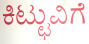
ಕಿಟ್ಟುವಿಗೆ